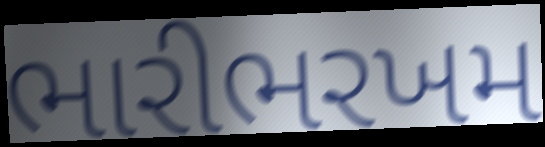
ભારીભરખમ